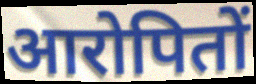
आरोपितों